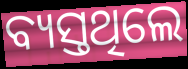
ବ୍ୟସ୍ତଥିଲେ